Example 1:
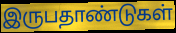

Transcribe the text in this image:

இருபதாண்டுகள்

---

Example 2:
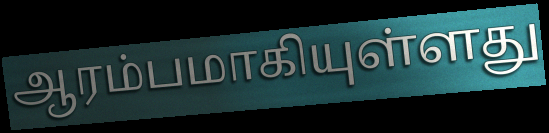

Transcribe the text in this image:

ஆரம்பமாகியுள்ளது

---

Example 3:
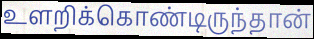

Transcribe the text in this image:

உளறிக்கொண்டிருந்தான்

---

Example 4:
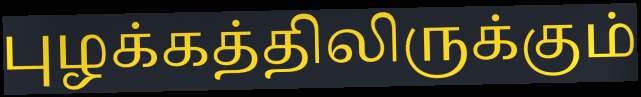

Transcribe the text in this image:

புழக்கத்திலிருக்கும்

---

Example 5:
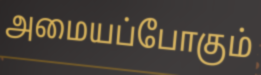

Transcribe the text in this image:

அமையப்போகும்